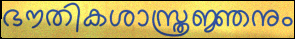
ഭൗതികശാസ്ത്രജ്ഞനും